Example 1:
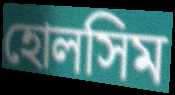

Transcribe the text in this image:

হোলসিম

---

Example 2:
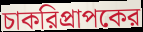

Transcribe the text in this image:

চাকরিপ্রাপকের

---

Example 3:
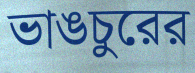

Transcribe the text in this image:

ভাঙচুরের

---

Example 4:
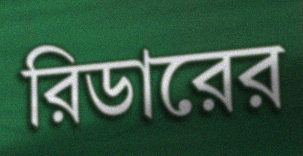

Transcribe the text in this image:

রিডারের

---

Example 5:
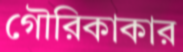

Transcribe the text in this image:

গৌরিকাকার